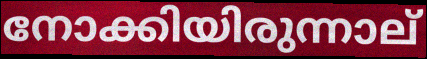
നോക്കിയിരുന്നാല്